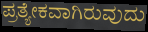
ಪ್ರತ್ಯೇಕವಾಗಿರುವುದು